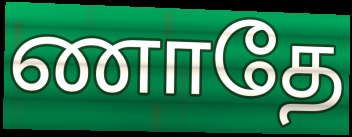
ணாதே